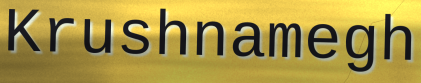
Krushnamegh